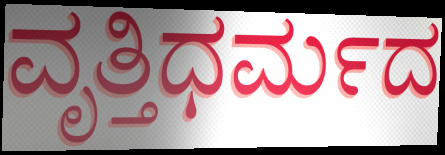
ವೃತ್ತಿಧರ್ಮದ